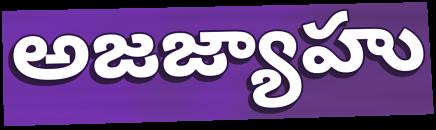
అజజ్యాహు